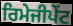
ਰਿਮੇਜੀਪੇਂਟ